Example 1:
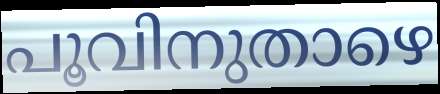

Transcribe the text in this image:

പൂവിനുതാഴെ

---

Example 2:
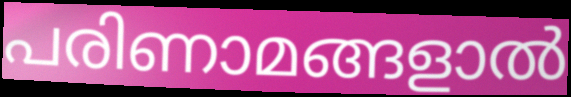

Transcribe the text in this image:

പരിണാമങ്ങളാൽ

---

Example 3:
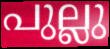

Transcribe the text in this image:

പുല്ലു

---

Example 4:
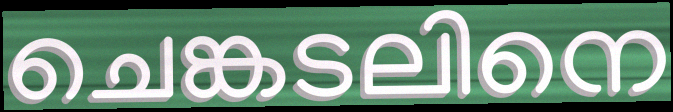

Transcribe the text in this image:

ചെങ്കടലിനെ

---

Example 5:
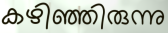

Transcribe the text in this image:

കഴിഞ്ഞിരുന്നു